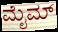
ಮೈಮ್